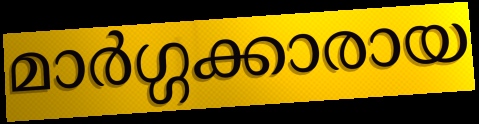
മാർഗ്ഗക്കാരായ